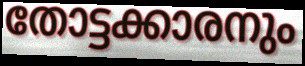
തോട്ടക്കാരനും